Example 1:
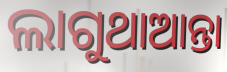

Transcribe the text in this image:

ଲାଗୁଥାଆନ୍ତା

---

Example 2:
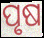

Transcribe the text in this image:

ପୃଷ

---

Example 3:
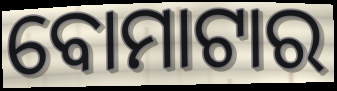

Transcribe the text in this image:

ବୋମାଟାର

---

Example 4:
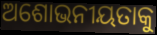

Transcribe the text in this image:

ଅଶୋଭନୀୟତାକୁ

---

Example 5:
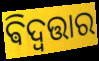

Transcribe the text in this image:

ଵିଦ୍ବତ୍ତାର